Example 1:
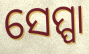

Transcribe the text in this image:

ସେପ୍ପା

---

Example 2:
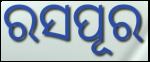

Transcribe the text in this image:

ରସପୂର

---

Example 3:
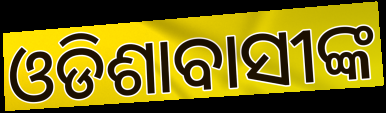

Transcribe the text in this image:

ଓଡିଶାବାସୀଙ୍କ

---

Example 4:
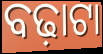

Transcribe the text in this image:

ବଢ଼ାଟା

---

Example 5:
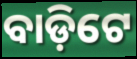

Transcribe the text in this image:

ବାଡ଼ିଟେ